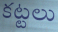
కట్టలు